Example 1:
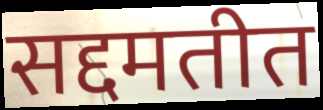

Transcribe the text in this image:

सद्दमतीत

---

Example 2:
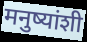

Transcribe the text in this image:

मनुष्यांशी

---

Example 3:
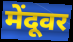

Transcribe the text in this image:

मेंदूवर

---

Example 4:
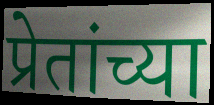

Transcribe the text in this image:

प्रेतांच्या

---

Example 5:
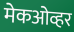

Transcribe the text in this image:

मेकओव्हर